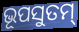
ଭୂପସୁତମ୍